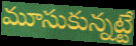
మూసుకున్నట్టే